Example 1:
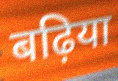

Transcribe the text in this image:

बढ़िया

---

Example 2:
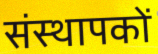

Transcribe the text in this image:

संस्थापकों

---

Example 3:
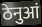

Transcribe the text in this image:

ठेनुआं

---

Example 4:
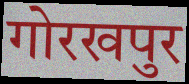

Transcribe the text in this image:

गोरखपुर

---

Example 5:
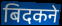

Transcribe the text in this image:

बिदकने